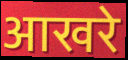
आखरे